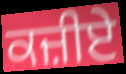
ਕਜ਼ੀਏ